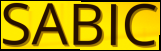
SABIC